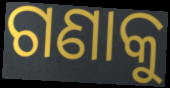
ଗଣାକୁ